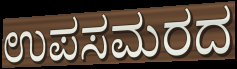
ಉಪಸಮರದ